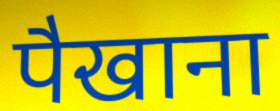
पैखाना